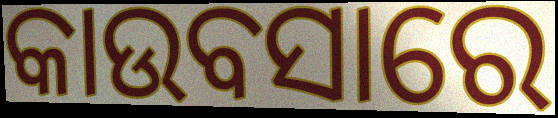
କାଉବସାରେ